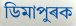
ডিমাপুৰক